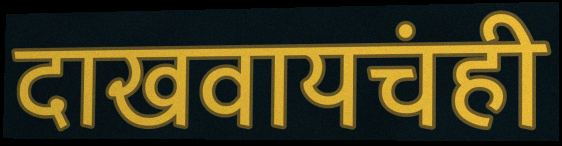
दाखवायचंही